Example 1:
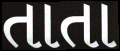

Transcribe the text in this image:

તાતા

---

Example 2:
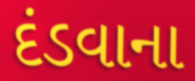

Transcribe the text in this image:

દંડવાના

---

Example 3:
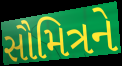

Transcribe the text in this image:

સૌમિત્રને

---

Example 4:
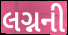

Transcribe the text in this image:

લગ્નની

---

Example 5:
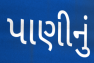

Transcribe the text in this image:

પાણીનું